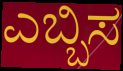
ಎಬ್ಬಿಸ